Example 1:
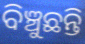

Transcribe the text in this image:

ବିଞ୍ଚୁଛନ୍ତି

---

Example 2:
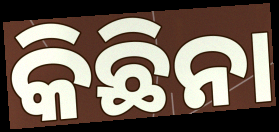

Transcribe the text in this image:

କିଛିନା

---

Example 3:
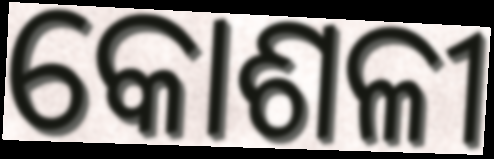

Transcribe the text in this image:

କୋଶଳୀ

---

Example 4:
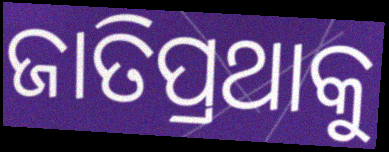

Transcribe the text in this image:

ଜାତିପ୍ରଥାକୁ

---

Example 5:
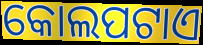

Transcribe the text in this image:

କୋଲପଟାଏ